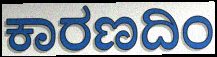
ಕಾರಣದಿಂ